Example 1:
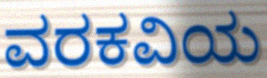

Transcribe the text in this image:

ವರಕವಿಯ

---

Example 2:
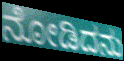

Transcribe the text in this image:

ನೋಡಿದನು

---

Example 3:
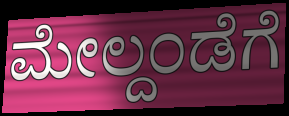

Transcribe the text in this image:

ಮೇಲ್ದಂಡೆಗೆ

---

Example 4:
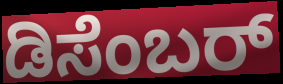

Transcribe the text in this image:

ಡಿಸೆಂಬರ್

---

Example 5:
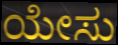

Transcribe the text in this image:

ಯೇಸು